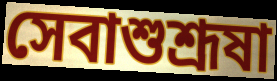
সেবাশুশ্রূষা